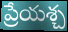
ప్రేయశ్చ